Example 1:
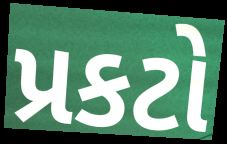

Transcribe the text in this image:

પ્રકટો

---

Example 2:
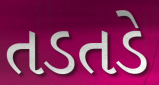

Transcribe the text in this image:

તડતડે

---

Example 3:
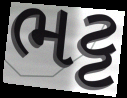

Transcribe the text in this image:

ભટ્ટ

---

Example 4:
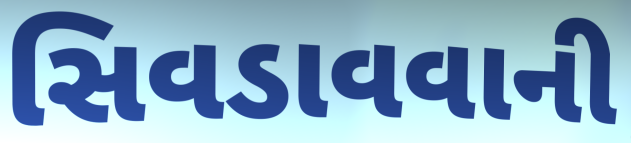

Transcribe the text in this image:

સિવડાવવાની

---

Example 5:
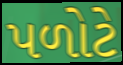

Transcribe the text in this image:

પળોટે